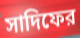
সাদিফের